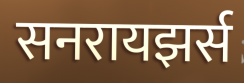
सनरायझर्स